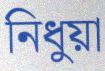
নিধুয়া